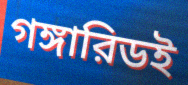
গঙ্গারিডই